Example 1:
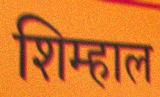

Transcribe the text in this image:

शिम्हाल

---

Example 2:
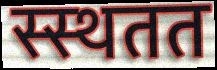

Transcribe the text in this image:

स्स्थतत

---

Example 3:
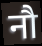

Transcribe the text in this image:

नौ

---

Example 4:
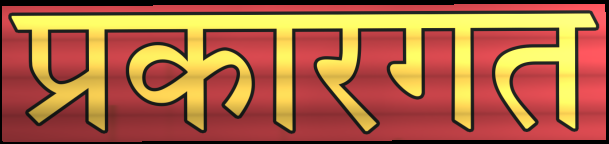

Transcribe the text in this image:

प्रकारगत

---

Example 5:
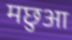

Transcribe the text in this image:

मछुआ